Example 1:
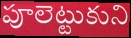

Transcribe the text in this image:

పూలెట్టుకుని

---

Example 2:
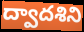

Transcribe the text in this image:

ద్వాదశిని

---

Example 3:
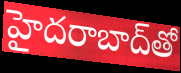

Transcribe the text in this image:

హైదరాబాద్‌తో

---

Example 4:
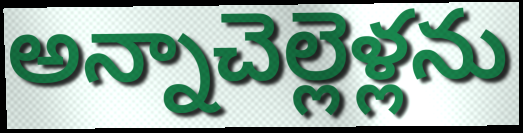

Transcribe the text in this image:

అన్నాచెల్లెళ్లను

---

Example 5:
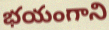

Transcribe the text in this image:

భయంగాని